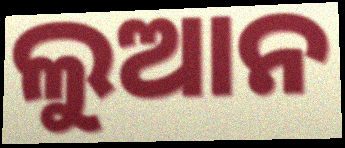
ଲୁଆନ